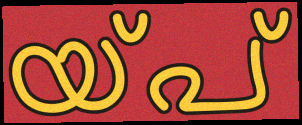
യ്പ്